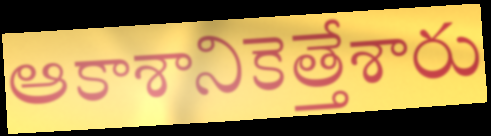
ఆకాశానికెత్తేశారు